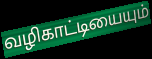
வழிகாட்டியையும்